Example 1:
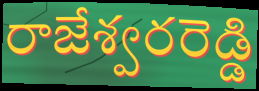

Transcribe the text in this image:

రాజేశ్వరరెడ్డి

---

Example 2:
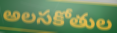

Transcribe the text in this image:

అలసకోతుల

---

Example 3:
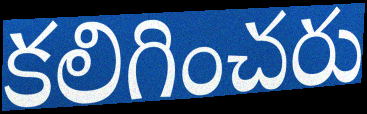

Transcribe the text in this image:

కలిగించరు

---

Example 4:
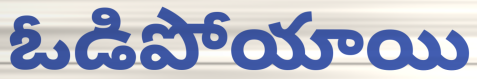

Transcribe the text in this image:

ఓడిపోయాయి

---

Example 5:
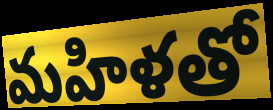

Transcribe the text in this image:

మహిళతో